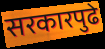
सरकारपुढे